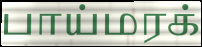
பாய்மரக்